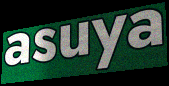
asuya